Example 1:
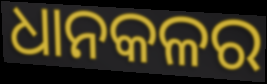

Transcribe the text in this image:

ଧାନକଳର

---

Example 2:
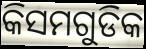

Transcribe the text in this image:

କିସମଗୁଡିକ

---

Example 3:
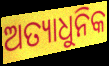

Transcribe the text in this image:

ଅତ୍ୟାଧୁନିକ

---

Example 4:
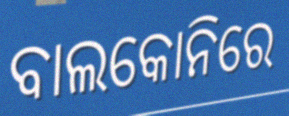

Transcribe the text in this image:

ବାଲକୋନିରେ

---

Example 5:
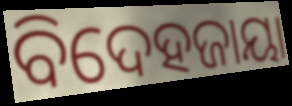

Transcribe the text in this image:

ବିଦେହଜାୟା